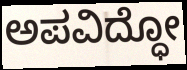
ಅಪವಿದ್ಧೋ